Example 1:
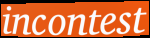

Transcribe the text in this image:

incontest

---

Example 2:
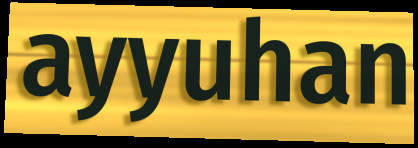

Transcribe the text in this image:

ayyuhan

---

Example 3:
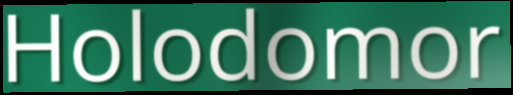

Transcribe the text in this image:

Holodomor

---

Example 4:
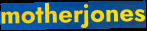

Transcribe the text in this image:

motherjones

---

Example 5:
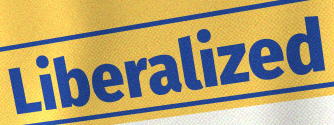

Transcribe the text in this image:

Liberalized